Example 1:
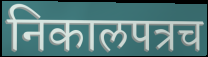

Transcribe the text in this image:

निकालपत्रच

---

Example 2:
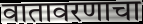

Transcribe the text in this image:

वातावरणाचा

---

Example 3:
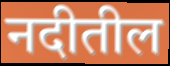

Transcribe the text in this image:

नदीतील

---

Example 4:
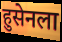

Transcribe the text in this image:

हुसेनला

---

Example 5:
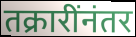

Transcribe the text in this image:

तक्रारींनंतर